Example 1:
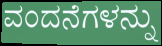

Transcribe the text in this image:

ವಂದನೆಗಳನ್ನು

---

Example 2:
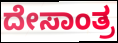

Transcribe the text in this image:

ದೇಸಾಂತ್ರ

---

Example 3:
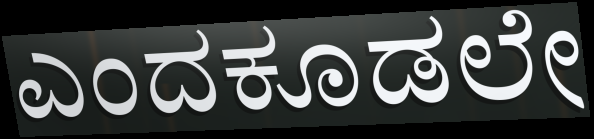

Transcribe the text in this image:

ಎಂದಕೂಡಲೇ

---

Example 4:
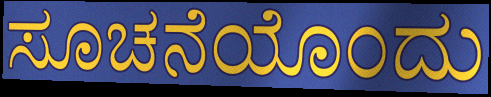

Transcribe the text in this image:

ಸೂಚನೆಯೊಂದು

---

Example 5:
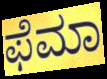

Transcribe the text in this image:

ಫೆಮಾ